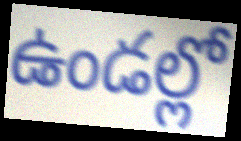
ఉండల్లో